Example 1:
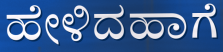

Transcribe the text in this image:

ಹೇಳಿದಹಾಗೆ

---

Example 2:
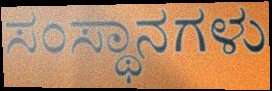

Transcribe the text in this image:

ಸಂಸ್ಥಾನಗಳು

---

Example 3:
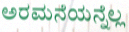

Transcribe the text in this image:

ಅರಮನೆಯನ್ನೆಲ್ಲ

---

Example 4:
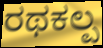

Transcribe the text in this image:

ರಥಕಲ್ಪ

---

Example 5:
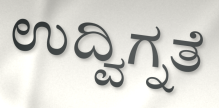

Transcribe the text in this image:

ಉದ್ವಿಗ್ನತೆ